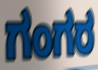
ಗಂಗರ